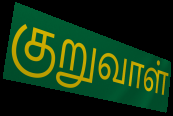
குறுவாள்